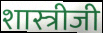
शास्त्रीजी